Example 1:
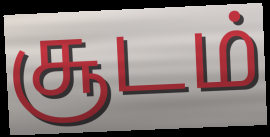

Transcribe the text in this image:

சூடம்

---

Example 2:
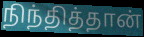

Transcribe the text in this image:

நிந்தித்தான்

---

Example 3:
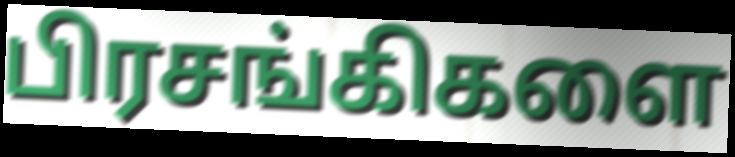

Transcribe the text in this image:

பிரசங்கிகளை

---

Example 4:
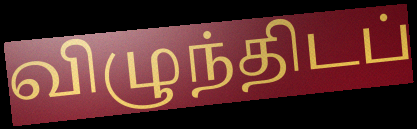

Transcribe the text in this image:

விழுந்திடப்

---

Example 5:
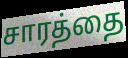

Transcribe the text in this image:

சாரத்தை